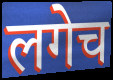
लगेच